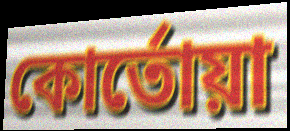
কোর্তোয়া